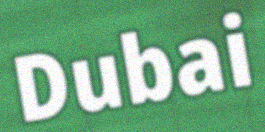
Dubai